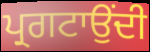
ਪ੍ਰਗਟਾਉਂਦੀ